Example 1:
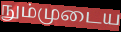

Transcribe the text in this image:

நும்முடைய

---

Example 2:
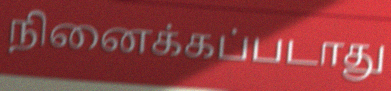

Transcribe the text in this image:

நினைக்கப்படாது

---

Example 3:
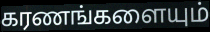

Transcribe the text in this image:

கரணங்களையும்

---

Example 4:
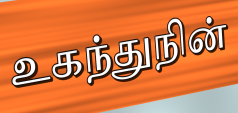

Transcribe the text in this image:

உகந்துநின்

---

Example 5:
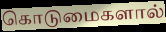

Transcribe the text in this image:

கொடுமைகளால்